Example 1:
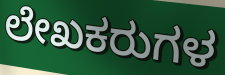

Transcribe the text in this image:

ಲೇಖಕರುಗಳ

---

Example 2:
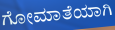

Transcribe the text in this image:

ಗೋಮಾತೆಯಾಗಿ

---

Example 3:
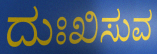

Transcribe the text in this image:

ದುಃಖಿಸುವ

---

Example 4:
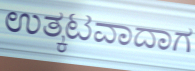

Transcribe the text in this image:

ಉತ್ಕಟವಾದಾಗ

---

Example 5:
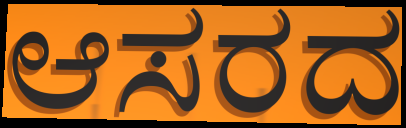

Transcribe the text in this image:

ಆಸರದ